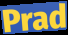
Prad